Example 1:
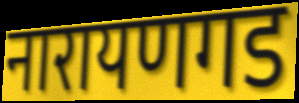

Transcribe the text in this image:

नारायणगड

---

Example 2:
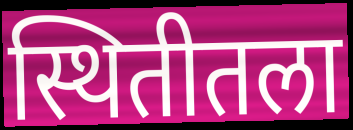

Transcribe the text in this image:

स्थितीतला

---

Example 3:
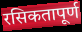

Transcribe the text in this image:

रसिकतापूर्ण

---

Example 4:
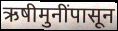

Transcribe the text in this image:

ऋषीमुनींपासून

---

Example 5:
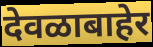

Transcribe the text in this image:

देवळाबाहेर